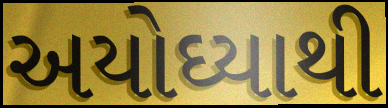
અયોઘ્યાથી